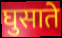
घुसाते